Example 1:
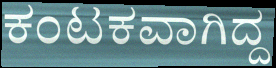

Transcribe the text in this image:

ಕಂಟಕವಾಗಿದ್ದ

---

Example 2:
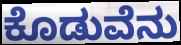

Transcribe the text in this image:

ಕೊಡುವೆನು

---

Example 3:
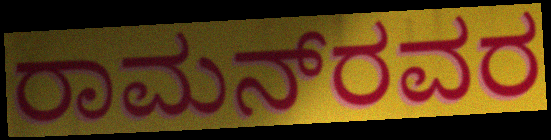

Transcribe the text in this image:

ರಾಮನ್‌ರವರ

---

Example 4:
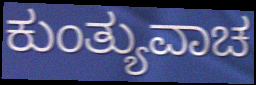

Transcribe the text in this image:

ಕುಂತ್ಯುವಾಚ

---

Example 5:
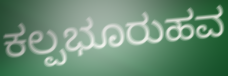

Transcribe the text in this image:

ಕಲ್ಪಭೂರುಹವ